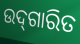
ଉଦ୍‌ଗାରିତ